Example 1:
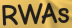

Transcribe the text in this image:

RWAs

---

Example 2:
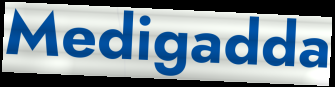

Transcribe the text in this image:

Medigadda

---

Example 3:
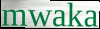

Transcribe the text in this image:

mwaka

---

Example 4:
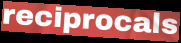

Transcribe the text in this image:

reciprocals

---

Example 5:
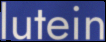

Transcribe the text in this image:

lutein